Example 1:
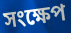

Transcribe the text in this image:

সংক্ষেপ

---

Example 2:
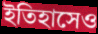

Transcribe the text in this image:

ইতিহাসেও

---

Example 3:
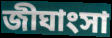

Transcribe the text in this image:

জীঘাংসা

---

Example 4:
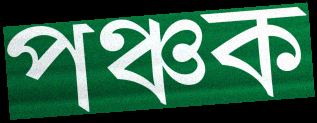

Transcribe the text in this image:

পঞ্চক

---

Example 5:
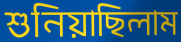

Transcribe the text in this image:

শুনিয়াছিলাম